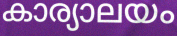
കാര്യാലയം